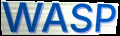
WASP